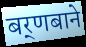
बर्णबाने